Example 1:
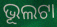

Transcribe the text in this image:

ଭୂଲଟା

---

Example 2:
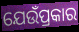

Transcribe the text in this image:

ଯେଉଁପ୍ରକାର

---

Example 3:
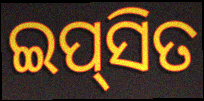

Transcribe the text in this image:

ଇପ୍‍ସିତ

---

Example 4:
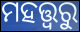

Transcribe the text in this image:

ମହତ୍ତ୍ୱରୁ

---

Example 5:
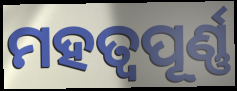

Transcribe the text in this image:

ମହତ୍ଵପୂର୍ଣ୍ଣ